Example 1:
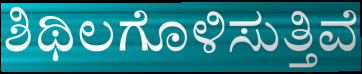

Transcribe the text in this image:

ಶಿಥಿಲಗೊಳಿಸುತ್ತಿವೆ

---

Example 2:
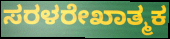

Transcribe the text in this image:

ಸರಳರೇಖಾತ್ಮಕ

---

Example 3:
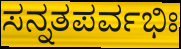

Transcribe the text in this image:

ಸನ್ನತಪರ್ವಭಿಃ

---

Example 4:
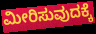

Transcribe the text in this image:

ಮೀರಿಸುವುದಕ್ಕೆ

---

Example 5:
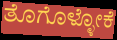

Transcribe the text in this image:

ತೊಗೊಳ್ಳೋಕೆ